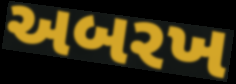
અબરખ